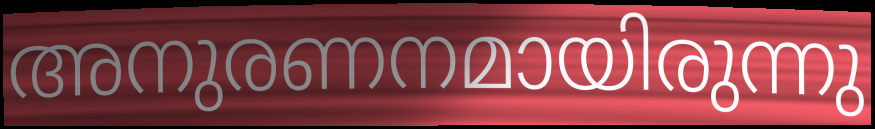
അനുരണനമായിരുന്നു